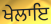
ਖੇਲਾਇ